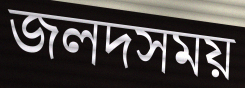
জলদসময়